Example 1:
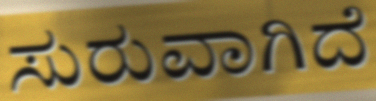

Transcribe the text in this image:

ಸುರುವಾಗಿದೆ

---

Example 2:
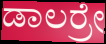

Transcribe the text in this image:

ಡಾಲರ್ರೇ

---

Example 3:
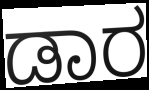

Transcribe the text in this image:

ಡಾರ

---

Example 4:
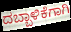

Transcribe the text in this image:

ದಬ್ಬಾಳಿಕೆಗಾಗಿ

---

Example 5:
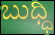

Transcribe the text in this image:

ಬುಧ್ಧಿ